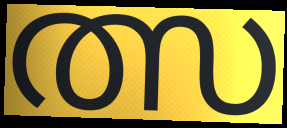
ത്സ